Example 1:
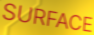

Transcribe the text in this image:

SURFACE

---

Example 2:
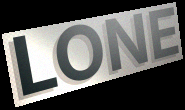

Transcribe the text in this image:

LONE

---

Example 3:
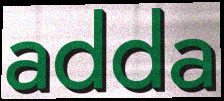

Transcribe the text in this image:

adda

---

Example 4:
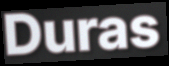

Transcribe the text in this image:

Duras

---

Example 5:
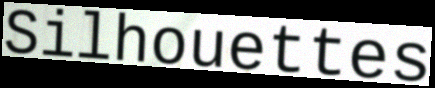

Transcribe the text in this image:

Silhouettes